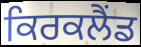
ਕਿਰਕਲੈਂਡ